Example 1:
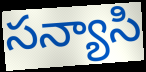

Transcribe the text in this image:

సన్యాసి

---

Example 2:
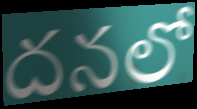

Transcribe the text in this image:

దనలో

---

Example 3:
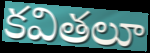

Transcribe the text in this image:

కవితలూ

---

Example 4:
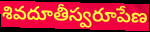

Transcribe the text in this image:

శివదూతీస్వరూపేణ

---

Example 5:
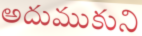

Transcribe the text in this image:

అదుముకుని